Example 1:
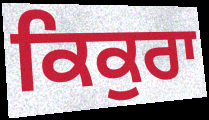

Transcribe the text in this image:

ਕਿਕੁਰਾ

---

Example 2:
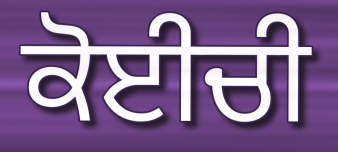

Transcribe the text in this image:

ਕੋਈਚੀ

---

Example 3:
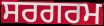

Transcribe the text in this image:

ਸਰਗਰਮ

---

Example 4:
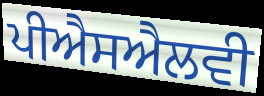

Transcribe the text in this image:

ਪੀਐਸਐਲਵੀ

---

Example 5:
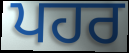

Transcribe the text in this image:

ਪਹਰ